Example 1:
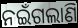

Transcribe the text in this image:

ନଇଁଗଲାଣି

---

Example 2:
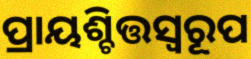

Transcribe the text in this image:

ପ୍ରାୟଶ୍ଚିତ୍ତସ୍ୱରୂପ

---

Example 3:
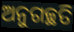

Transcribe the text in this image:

ଅନୁଗଚ୍ଛତି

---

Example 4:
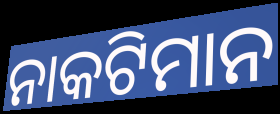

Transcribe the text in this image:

ନାକଟିମାନ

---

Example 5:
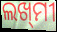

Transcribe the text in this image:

ଲଖ୍‌ମୀ